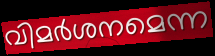
വിമർശനമെന്ന